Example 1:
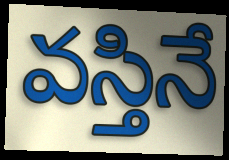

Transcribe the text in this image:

వస్తినే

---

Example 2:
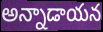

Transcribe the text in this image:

అన్నాడాయన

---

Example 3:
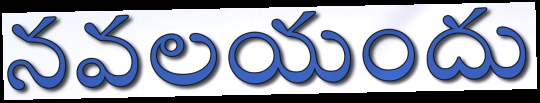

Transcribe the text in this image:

నవలయందు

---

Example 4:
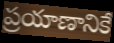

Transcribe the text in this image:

ప్రయాణానికే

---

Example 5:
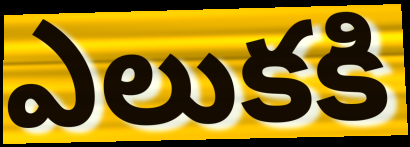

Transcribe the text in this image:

ఎలుకకి